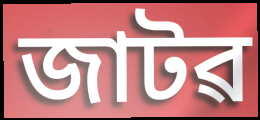
জাটৱ